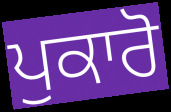
ਪੁਕਾਰੋ